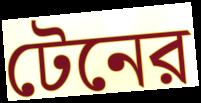
টেনের